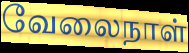
வேலைநாள்